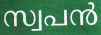
സ്വപൻ